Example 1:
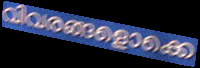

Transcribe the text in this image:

വിവരങ്ങളൊക്കെ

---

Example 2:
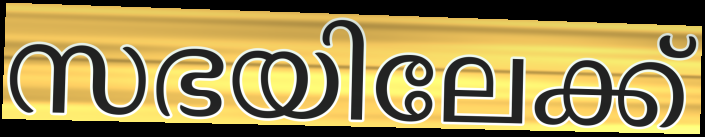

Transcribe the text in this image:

സഭയിലേക്ക്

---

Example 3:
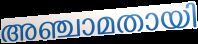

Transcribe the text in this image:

അഞ്ചാമതായി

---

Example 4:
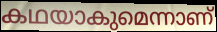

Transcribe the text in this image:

കഥയാകുമെന്നാണ്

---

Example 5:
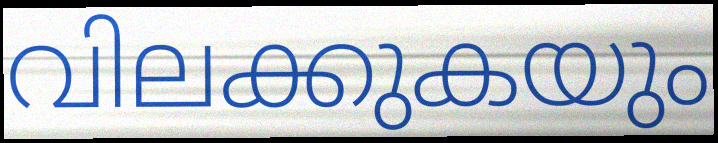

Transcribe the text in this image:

വിലക്കുകയും